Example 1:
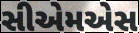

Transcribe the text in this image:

સીએમએસ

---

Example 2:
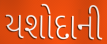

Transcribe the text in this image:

યશોદાની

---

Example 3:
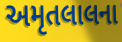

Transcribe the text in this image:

અમૃતલાલના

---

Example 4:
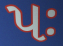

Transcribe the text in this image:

પઃ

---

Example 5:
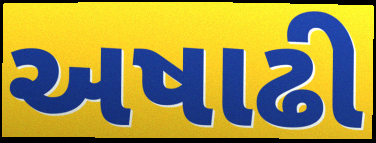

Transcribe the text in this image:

અષાઢી